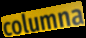
columna